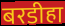
बरडीहा